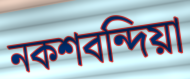
নকশবন্দিয়া